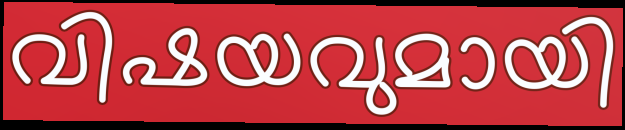
വിഷയവുമായി